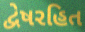
દ્વેષરહિત